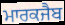
ਮਾਰਕਜੈਬ